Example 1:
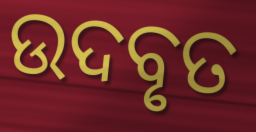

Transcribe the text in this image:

ଉଦବୃତ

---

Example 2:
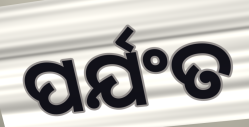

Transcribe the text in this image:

ପର୍ଯଂତ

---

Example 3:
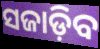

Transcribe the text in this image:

ସଜାଡ଼ିବ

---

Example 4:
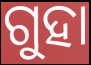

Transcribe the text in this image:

ଗୁହା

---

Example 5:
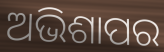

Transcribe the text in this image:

ଅଭିଶାପର